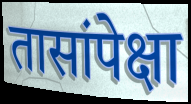
तासांपेक्षा